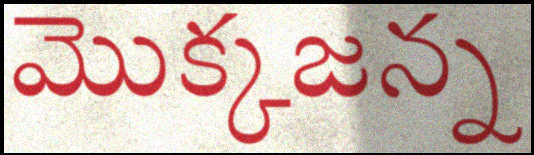
మొక్కజన్న